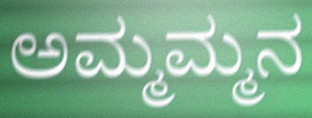
ಅಮ್ಮಮ್ಮನ